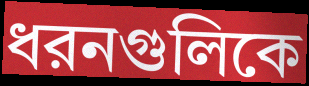
ধরনগুলিকে